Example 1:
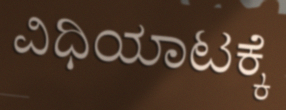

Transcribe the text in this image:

ವಿಧಿಯಾಟಕ್ಕೆ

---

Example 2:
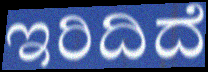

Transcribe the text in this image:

ಇರಿದಿದೆ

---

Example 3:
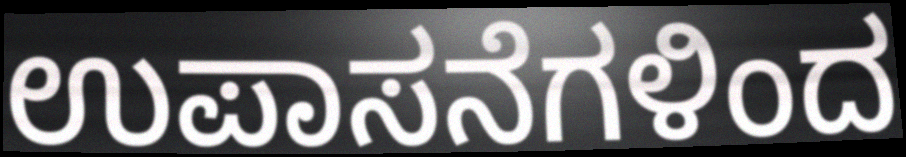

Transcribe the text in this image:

ಉಪಾಸನೆಗಳಿಂದ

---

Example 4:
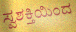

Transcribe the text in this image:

ಸ್ವಶಕ್ತಿಯಿಂದ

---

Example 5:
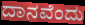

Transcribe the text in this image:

ದಾನವೆಂದು